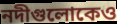
নদীগুলোকেও